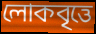
লোকবৃত্তে